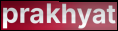
prakhyat